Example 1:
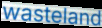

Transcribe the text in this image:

wasteland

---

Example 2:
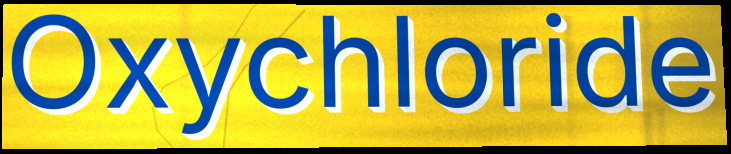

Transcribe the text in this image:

Oxychloride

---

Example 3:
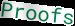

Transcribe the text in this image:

Proofs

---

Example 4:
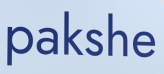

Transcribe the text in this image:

pakshe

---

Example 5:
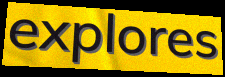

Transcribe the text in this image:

explores